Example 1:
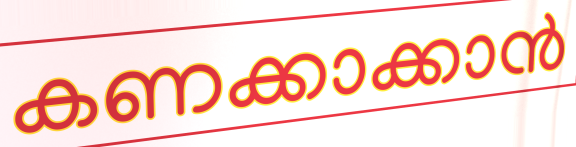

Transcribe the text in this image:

കണക്കാക്കാൻ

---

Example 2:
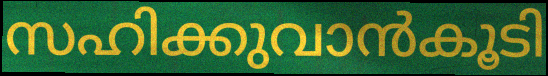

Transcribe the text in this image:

സഹിക്കുവാൻകൂടി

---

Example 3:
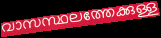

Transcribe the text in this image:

വാസസ്ഥലത്തേക്കുള്ള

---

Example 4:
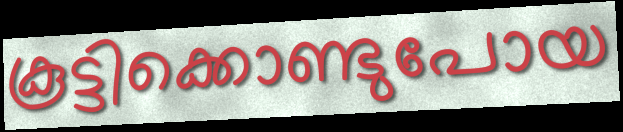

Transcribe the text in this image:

കൂട്ടിക്കൊണ്ടുപോയ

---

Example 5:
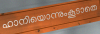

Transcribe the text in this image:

ഹാനിയൊന്നുംകൂടാതെ